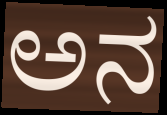
ಅನ